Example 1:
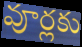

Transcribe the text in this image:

వూర్లకు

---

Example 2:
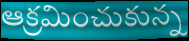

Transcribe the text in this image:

ఆక్రమించుకున్న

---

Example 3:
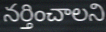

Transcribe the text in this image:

నర్తించాలని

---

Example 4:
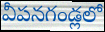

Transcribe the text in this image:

వీపనగండ్లలో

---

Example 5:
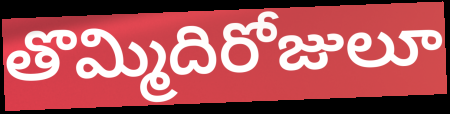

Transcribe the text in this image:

తొమ్మిదిరోజులూ